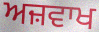
ਅਜ਼ਵਾਖ